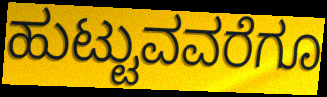
ಹುಟ್ಟುವವರೆಗೂ